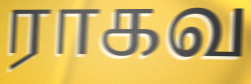
ராகவ